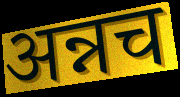
अन्नच